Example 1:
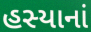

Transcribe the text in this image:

હસ્યાનાં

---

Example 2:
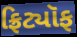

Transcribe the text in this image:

ફ્રિટ્યૉફ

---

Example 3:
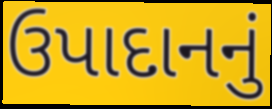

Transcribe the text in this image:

ઉપાદાનનું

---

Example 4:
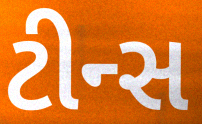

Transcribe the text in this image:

ટીન્સ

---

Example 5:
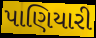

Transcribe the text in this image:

પાણિયારી